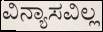
ವಿನ್ಯಾಸವಿಲ್ಲ